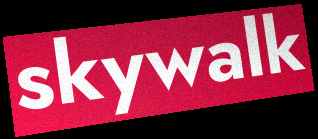
skywalk